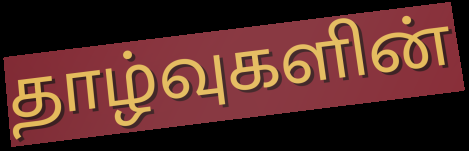
தாழ்வுகளின்